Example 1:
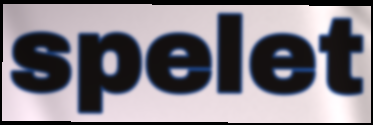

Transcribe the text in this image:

spelet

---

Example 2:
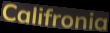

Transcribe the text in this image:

Califronia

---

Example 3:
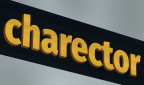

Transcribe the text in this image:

charector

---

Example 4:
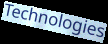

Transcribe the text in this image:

Technologies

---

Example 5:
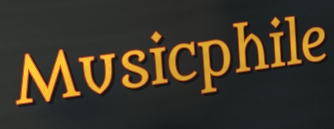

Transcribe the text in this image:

Musicphile